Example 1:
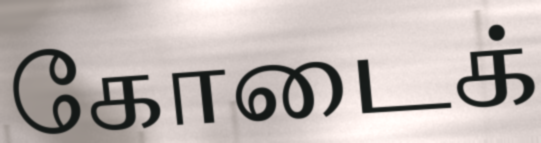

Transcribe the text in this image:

கோடைக்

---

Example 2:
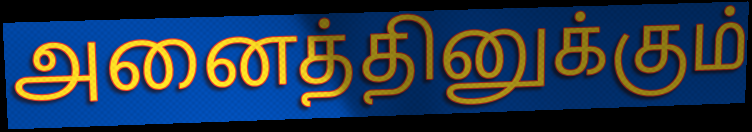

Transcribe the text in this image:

அனைத்தினுக்கும்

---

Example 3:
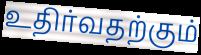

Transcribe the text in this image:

உதிர்வதற்கும்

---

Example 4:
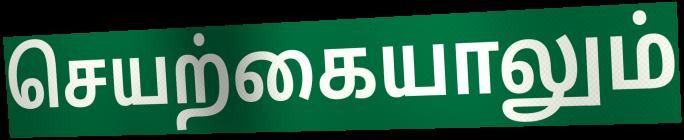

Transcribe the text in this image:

செயற்கையாலும்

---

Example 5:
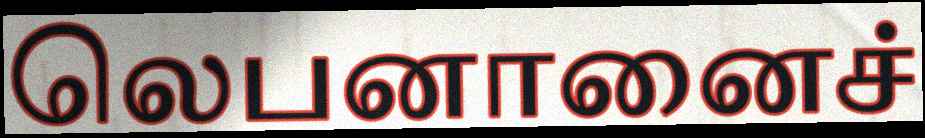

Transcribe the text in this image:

லெபனானைச்